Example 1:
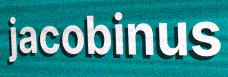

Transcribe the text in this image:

jacobinus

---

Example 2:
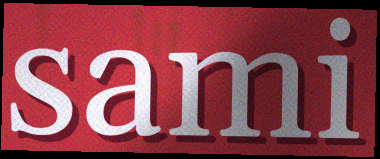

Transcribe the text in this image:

sami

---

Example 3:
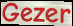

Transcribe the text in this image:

Gezer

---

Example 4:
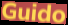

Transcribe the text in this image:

Guido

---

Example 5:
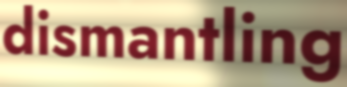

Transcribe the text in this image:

dismantling